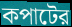
কপাটের